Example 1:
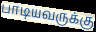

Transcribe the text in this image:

பாடியவருக்கு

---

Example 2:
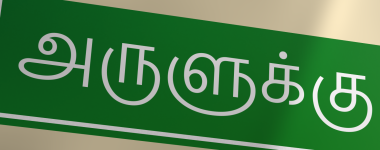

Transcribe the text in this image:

அருளுக்கு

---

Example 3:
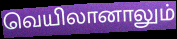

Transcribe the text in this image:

வெயிலானாலும்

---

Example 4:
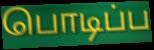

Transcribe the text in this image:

பொடிப்ப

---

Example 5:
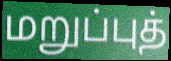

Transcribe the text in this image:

மறுப்புத்